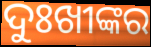
ଦୁଃଖୀଙ୍କର